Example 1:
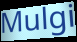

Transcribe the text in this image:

Mulgi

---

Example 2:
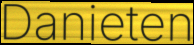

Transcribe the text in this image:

Danieten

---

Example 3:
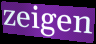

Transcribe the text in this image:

zeigen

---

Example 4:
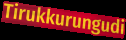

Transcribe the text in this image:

Tirukkurungudi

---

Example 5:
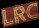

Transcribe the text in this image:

LRC